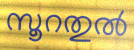
സൂറതുൽ